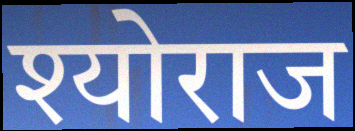
श्योराज